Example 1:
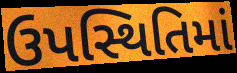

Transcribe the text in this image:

ઉપસ્થિતિમાં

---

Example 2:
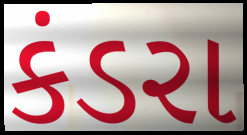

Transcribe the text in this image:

કંડરા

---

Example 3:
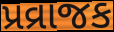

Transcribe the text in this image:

પ્રવ્રાજક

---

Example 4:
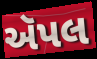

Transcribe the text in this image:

ઍપલ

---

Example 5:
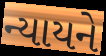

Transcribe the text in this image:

ન્યાયને